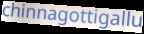
chinnagottigallu